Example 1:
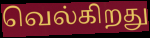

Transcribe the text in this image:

வெல்கிறது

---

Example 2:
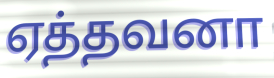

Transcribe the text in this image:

ஏத்தவனா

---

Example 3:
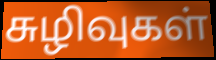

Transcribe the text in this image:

சுழிவுகள்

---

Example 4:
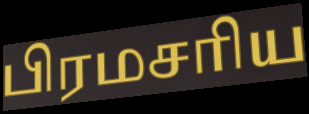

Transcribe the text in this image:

பிரமசரிய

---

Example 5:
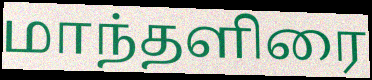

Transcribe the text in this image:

மாந்தளிரை